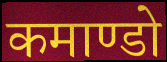
कमाण्डो